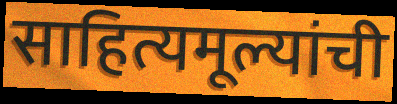
साहित्यमूल्यांची